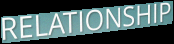
RELATIONSHIP